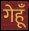
गेहूँ